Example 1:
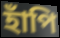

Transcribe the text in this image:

হাঁপি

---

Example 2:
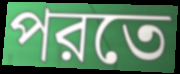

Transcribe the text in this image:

পরতে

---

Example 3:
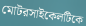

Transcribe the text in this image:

মোটরসাইকেলটিকে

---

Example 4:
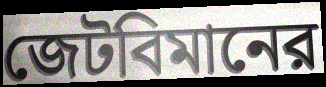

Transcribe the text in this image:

জেটবিমানের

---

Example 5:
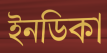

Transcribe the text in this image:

ইনডিকা